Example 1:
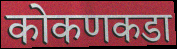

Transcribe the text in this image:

कोकणकडा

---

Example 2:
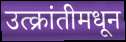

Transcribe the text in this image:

उत्क्रांतीमधून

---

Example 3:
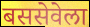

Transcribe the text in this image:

बससेवेला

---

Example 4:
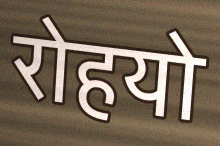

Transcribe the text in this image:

रोहयो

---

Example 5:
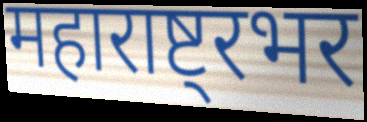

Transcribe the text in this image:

महाराष्ट्रभर